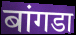
बांगडा